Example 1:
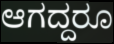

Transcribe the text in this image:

ಆಗದ್ದರೂ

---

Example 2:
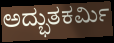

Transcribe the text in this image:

ಅದ್ಭುತಕರ್ಮಿ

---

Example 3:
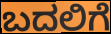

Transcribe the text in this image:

ಬದಲಿಗೆ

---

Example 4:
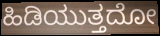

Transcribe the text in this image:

ಹಿಡಿಯುತ್ತದೋ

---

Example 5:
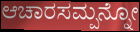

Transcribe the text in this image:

ಆಚಾರಸಮ್ಪನ್ನೋ